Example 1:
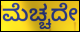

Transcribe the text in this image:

ಮೆಚ್ಚದೇ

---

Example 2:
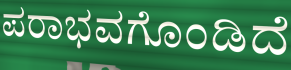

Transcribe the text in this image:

ಪರಾಭವಗೊಂಡಿದೆ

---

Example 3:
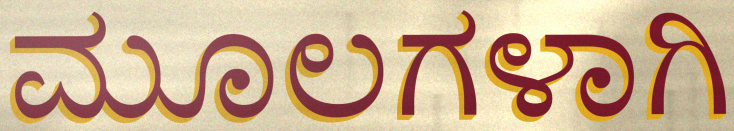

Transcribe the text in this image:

ಮೂಲಗಳಾಗಿ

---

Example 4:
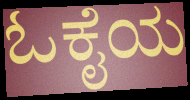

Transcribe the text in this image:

ಓಕೈಯ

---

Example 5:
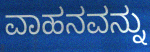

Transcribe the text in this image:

ವಾಹನವನ್ನು